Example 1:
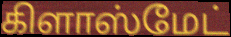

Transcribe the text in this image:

கிளாஸ்மேட்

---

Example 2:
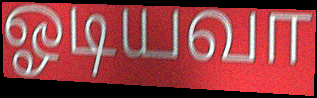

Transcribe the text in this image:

ஓடியவா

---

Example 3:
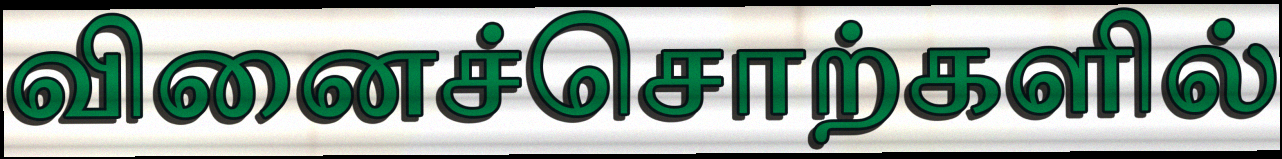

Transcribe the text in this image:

வினைச்சொற்களில்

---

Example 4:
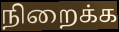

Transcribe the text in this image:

நிறைக்க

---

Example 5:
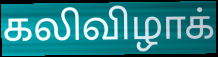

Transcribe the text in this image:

கலிவிழாக்